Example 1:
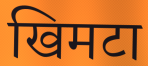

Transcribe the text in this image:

खिमटा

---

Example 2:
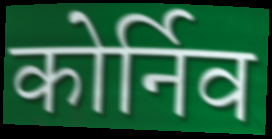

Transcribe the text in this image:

कोर्निव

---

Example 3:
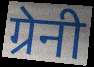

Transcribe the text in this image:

ग्रेनी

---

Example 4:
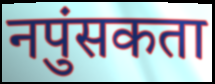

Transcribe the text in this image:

नपुंसकता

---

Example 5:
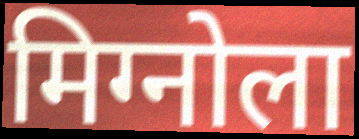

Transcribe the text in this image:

मिग्नोला